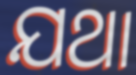
ଯଥା